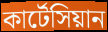
কার্টেসিয়ান